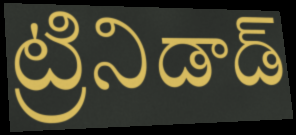
ట్రినిడాడ్